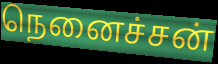
நெனைச்சன்